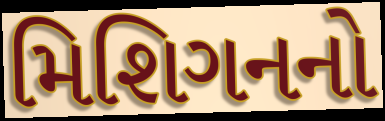
મિશિગનનો